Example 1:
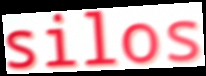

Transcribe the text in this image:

silos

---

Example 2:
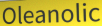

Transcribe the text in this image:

Oleanolic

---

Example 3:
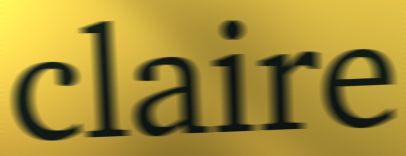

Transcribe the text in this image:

claire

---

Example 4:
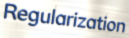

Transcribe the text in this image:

Regularization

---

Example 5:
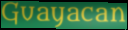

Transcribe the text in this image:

Guayacan